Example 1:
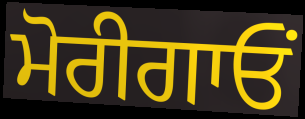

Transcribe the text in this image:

ਮੋਰੀਗਾਓਂ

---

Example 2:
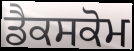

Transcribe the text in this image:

ਡੈਕਸਕੋਮ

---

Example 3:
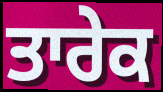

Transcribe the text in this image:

ਤਾਰੇਕ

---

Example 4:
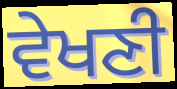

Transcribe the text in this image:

ਵੇਖਣੀ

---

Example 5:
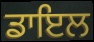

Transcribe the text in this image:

ਡਾਇਲ